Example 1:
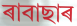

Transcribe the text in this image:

ৰাবাছাৰ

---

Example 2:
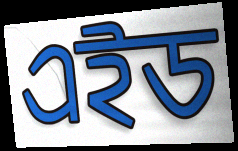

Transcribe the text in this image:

এইড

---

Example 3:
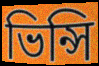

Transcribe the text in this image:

ভিন্সি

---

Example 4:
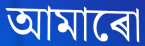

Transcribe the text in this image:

আমাৰো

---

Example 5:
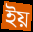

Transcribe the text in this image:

ইয়